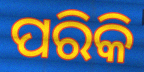
ପରିକି